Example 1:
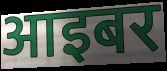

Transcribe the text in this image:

आइबर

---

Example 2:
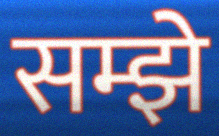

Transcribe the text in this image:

सम्झे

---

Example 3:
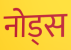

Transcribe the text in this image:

नोड्स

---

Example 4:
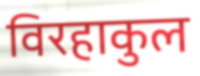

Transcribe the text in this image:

विरहाकुल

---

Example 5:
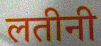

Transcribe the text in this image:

लतीनी